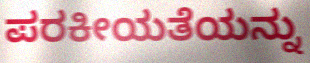
ಪರಕೀಯತೆಯನ್ನು